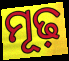
ମୂଢ଼